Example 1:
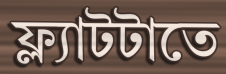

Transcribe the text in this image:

ফ্ল্যাটটাতে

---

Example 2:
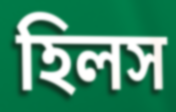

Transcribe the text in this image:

হিলস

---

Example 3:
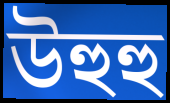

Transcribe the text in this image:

উহুহু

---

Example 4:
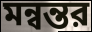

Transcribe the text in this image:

মন্বন্তর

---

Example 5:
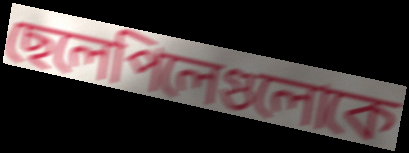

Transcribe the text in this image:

ছেলেপিলেগুলোকে